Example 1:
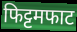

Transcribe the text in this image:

फिट्टमफाट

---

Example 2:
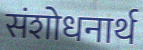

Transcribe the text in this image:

संशोधनार्थ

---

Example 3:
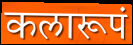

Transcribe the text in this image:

कलारूपं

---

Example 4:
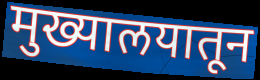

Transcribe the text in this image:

मुख्यालयातून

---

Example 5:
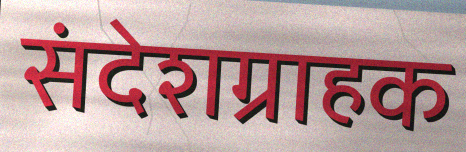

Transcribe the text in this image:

संदेशग्राहक